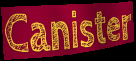
Canister